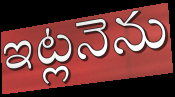
ఇట్లనెను